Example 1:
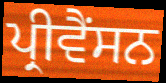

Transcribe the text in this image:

ਪ੍ਰੀਵੈਂਸਨ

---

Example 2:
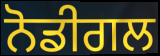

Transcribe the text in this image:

ਨੋਡੀਗਲ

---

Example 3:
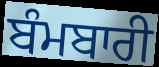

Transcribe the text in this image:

ਬੰਮਬਾਰੀ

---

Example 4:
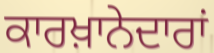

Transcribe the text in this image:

ਕਾਰਖ਼ਾਨੇਦਾਰਾਂ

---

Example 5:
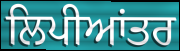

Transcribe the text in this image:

ਲਿਪੀਆਂਤਰ